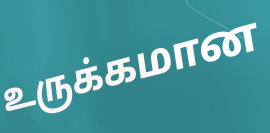
உருக்கமான